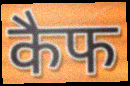
कैफ